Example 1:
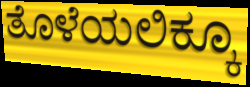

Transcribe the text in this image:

ತೊಳೆಯಲಿಕ್ಕೂ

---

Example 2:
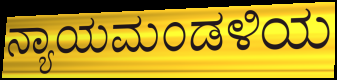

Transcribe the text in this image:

ನ್ಯಾಯಮಂಡಳಿಯ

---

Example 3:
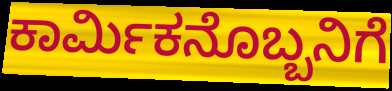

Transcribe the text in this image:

ಕಾರ್ಮಿಕನೊಬ್ಬನಿಗೆ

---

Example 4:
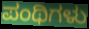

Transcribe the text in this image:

ಪಂಥಿಗಳು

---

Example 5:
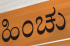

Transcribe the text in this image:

ಹಿಂಚು